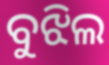
ବୁଝିଲ